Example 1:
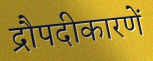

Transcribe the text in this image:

द्रौपदीकारणें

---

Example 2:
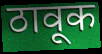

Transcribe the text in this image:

ठावूक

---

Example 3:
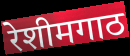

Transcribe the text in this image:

रेशीमगाठ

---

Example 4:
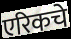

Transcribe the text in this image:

एरिकचे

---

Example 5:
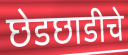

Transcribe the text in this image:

छेडछाडीचे